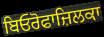
ਬਿਓਰੋਫਾਜ਼ਿਲਕਾ